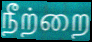
நீற்றை